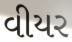
વીયર